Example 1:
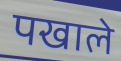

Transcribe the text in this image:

पखाले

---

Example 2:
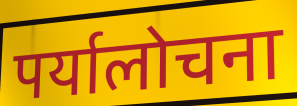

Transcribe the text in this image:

पर्यालोचना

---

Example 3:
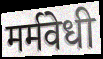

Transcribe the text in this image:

मर्मवेधी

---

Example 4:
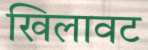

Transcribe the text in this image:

खिलावट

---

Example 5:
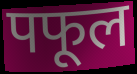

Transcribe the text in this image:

पफूल